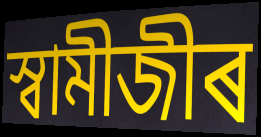
স্বামীজীৰ